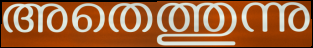
അതെത്തുന്നു